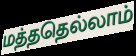
மத்ததெல்லாம்